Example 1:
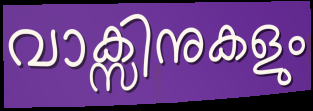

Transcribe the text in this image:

വാക്സിനുകളും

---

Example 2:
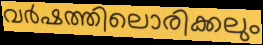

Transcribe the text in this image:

വർഷത്തിലൊരിക്കലും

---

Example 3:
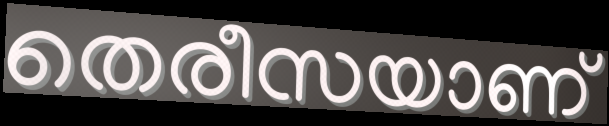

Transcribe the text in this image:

തെരീസയാണ്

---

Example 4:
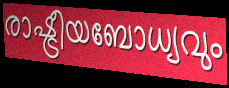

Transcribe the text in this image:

രാഷ്ട്രീയബോധ്യവും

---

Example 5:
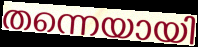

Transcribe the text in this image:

തന്നെയായി